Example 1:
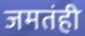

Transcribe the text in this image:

जमतंही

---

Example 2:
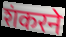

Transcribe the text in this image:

शंकरने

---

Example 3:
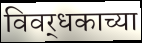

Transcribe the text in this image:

विवर्धकाच्या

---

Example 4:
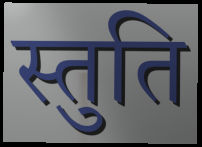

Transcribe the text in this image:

स्तुति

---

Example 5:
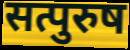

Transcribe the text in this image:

सत्पुरुष